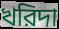
খরিদা